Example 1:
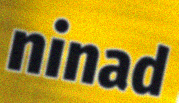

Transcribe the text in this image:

ninad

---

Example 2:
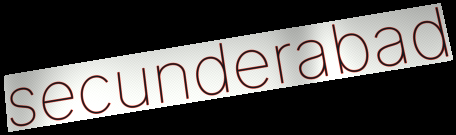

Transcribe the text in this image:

secunderabad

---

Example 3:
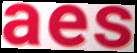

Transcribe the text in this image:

aes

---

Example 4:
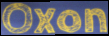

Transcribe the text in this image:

Oxon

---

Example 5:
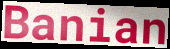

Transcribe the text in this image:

Banian